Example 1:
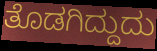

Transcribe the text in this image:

ತೊಡಗಿದ್ದುದು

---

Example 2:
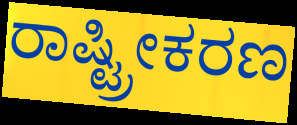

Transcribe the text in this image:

ರಾಷ್ಟ್ರೀಕರಣ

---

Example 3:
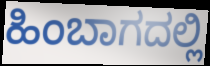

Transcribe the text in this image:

ಹಿಂಬಾಗದಲ್ಲಿ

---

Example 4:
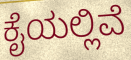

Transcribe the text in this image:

ಕೈಯಲ್ಲಿವೆ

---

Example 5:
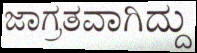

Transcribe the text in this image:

ಜಾಗ್ರತವಾಗಿದ್ದು